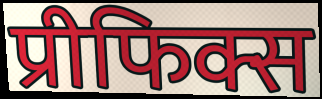
प्रीफिक्स